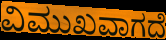
ವಿಮುಖವಾಗದೆ